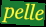
pelle